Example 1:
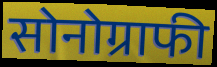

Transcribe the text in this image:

सोनोग्राफी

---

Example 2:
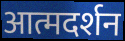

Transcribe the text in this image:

आत्मदर्शन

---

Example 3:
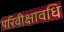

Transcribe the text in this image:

परिवीक्षावधि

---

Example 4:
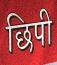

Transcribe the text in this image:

छिपी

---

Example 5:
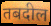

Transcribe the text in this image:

तबदील